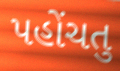
પહોંચતુ